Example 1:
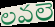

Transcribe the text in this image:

లవలె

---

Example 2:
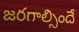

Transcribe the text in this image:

జరగాల్సిందే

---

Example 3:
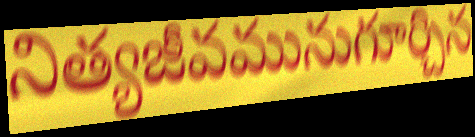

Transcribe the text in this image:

నిత్యజీవమునుగూర్చిన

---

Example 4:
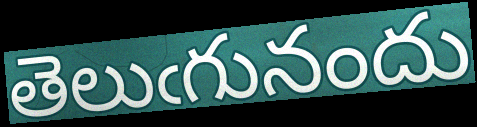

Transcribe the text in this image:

తెలుఁగునందు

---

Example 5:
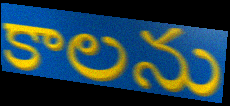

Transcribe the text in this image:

కాలను